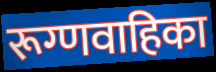
रूग्णवाहिका